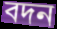
বদন